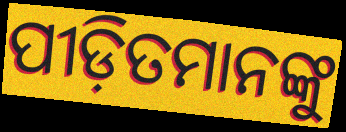
ପୀଡ଼ିତମାନଙ୍କୁ